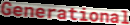
Generational